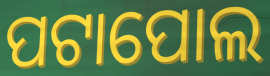
ପଟାପୋଲ